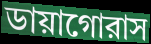
ডায়াগোরাস